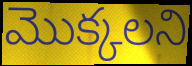
మొక్కలని